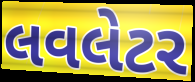
લવલેટર